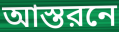
আস্তরনে